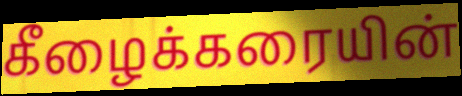
கீழைக்கரையின்